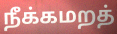
நீக்கமறத்